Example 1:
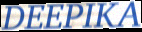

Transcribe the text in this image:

DEEPIKA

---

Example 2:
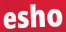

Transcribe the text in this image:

esho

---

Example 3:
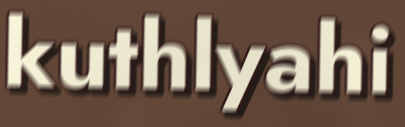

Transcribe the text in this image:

kuthlyahi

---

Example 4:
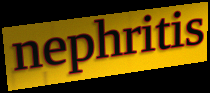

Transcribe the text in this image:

nephritis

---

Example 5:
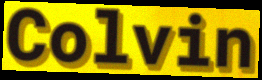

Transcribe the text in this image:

Colvin